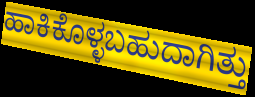
ಹಾಕಿಕೊಳ್ಳಬಹುದಾಗಿತ್ತು